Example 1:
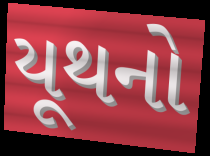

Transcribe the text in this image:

યૂથનો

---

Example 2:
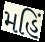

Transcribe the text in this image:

મહિં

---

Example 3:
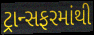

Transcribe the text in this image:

ટ્રાન્સફરમાંથી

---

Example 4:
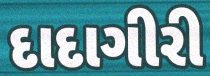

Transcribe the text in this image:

દાદાગીરી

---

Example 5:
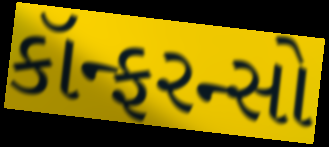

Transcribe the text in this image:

કૉન્ફરન્સો